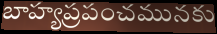
బాహ్యప్రపంచమునకు